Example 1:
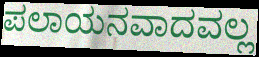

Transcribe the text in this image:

ಪಲಾಯನವಾದವಲ್ಲ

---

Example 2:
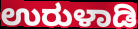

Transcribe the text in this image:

ಉರುಳಾಡಿ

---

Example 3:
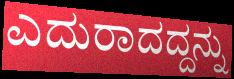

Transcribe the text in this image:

ಎದುರಾದದ್ದನ್ನು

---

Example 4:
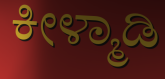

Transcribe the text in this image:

ಕೀಳ್ಮಾಡಿ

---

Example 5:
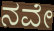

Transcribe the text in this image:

ನವೇ